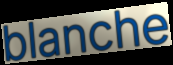
blanche